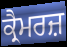
ਕ੍ਰੈਮਰਜ਼